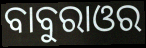
ବାବୁରାଓର